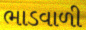
ભાડવાળી